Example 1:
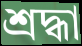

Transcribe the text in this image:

শ্ৰদ্ধা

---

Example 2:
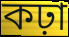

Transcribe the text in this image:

কঢ়া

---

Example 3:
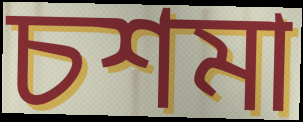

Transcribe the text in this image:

চশমা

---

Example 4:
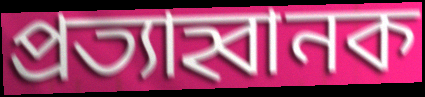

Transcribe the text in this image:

প্ৰত্যাহ্বানক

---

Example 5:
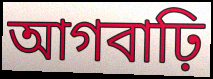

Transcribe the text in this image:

আগবাঢ়ি